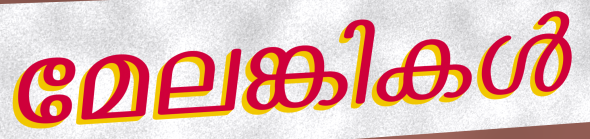
മേലങ്കികൾ